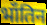
भाँतिन